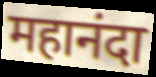
महानंदा